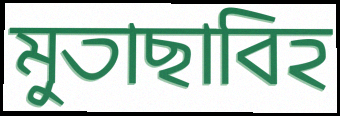
মুতাছাবিহ